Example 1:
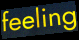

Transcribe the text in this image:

feeling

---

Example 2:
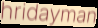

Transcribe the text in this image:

hridayman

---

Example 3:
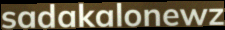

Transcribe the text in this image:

sadakalonewz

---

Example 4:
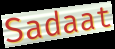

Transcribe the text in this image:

Sadaat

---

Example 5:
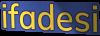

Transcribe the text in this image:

ifadesi